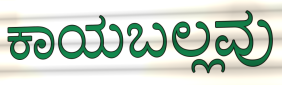
ಕಾಯಬಲ್ಲವು